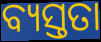
ବ୍ୟସ୍ତତା